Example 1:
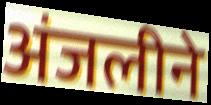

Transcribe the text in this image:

अंजलीने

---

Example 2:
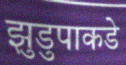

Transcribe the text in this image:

झुडुपाकडे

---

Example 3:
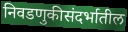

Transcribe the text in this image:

निवडणुकीसंदर्भातील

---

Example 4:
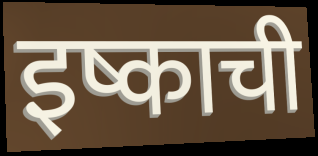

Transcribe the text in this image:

इष्काची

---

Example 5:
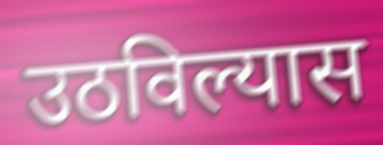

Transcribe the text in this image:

उठविल्यास